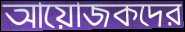
আয়োজকদের